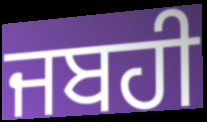
ਜਬਹੀ